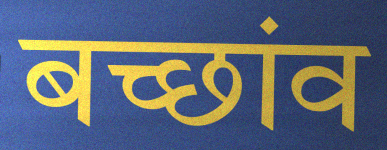
बच्छांव